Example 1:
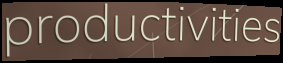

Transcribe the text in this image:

productivities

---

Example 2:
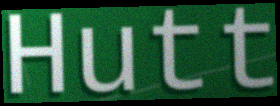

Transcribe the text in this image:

Hutt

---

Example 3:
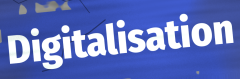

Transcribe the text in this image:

Digitalisation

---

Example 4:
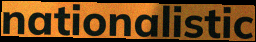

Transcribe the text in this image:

nationalistic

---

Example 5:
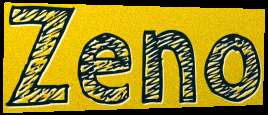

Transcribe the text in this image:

Zeno